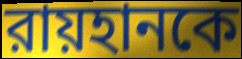
রায়হানকে